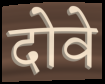
दोवे